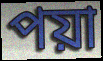
পয়া